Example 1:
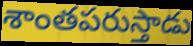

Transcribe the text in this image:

శాంతపరుస్తాడు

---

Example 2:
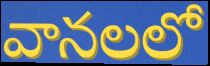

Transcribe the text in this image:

వానలలో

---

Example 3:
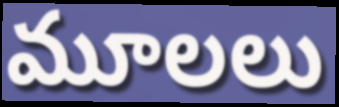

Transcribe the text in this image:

మూలలు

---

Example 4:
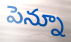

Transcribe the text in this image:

పెన్నూ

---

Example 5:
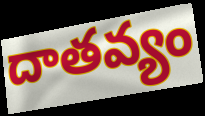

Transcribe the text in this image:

దాతవ్యం